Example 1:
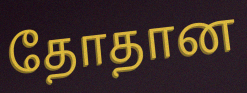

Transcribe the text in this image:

தோதான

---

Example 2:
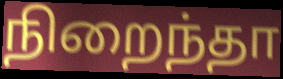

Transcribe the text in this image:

நிறைந்தா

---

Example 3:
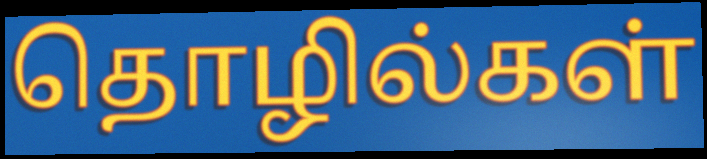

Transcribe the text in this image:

தொழில்கள்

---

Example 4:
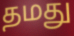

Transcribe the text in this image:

தமது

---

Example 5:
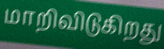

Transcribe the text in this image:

மாறிவிடுகிறது